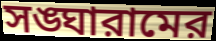
সঙ্ঘারামের